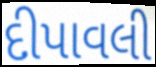
દીપાવલી